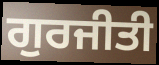
ਗੁਰਜੀਤੀ